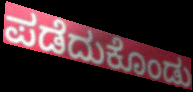
ಪಡೆದುಕೊಂಡು